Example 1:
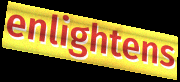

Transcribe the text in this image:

enlightens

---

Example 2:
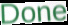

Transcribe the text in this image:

Done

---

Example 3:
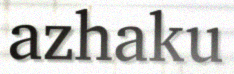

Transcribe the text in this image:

azhaku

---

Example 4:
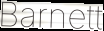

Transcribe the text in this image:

Barnett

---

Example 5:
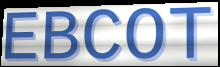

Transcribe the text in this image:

EBCOT